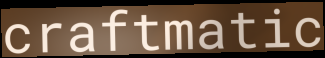
craftmatic